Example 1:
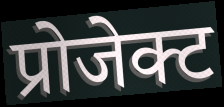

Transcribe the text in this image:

प्रोजेक्ट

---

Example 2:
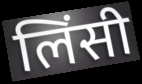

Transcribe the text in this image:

लिंसी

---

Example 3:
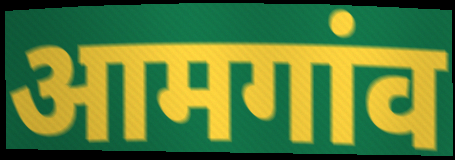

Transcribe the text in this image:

आमगांव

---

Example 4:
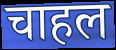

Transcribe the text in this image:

चाहल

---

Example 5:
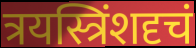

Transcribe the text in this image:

त्रयस्त्रिंशदृचं